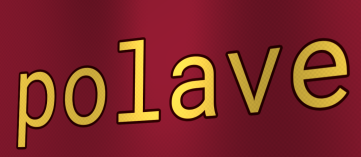
polave